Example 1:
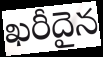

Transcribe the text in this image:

ఖరీదైన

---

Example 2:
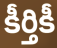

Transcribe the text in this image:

కీర్తికీ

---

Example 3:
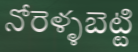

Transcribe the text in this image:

నోరెళ్ళబెట్టి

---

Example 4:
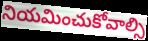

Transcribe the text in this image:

నియమించుకోవాల్సి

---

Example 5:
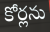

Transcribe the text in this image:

కోర్లను